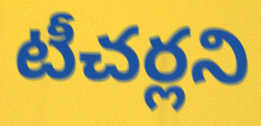
టీచర్లని